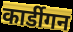
कार्डीगन